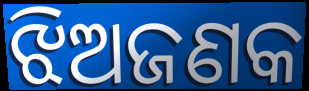
ଝିଅଜଣକ